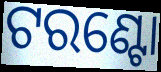
ଟରଣ୍ଟୋ